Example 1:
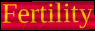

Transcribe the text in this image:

Fertility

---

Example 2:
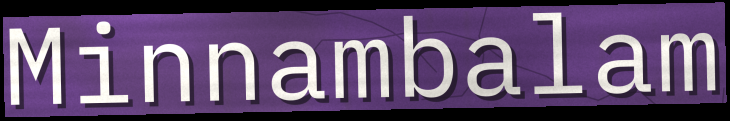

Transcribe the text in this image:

Minnambalam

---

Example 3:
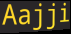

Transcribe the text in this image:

Aajji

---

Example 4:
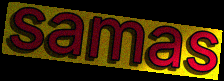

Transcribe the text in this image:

samas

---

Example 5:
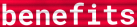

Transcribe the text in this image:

benefits